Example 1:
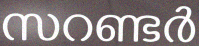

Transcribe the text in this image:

സറണ്ടർ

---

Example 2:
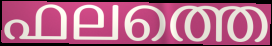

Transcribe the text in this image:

ഫലത്തെ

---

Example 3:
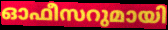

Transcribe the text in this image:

ഓഫീസറുമായി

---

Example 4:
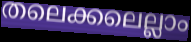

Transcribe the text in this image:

തലെക്കലെല്ലാം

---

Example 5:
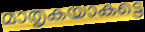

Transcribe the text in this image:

മാതൃകയാകട്ടെ